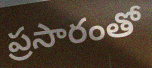
ప్రసారంతో